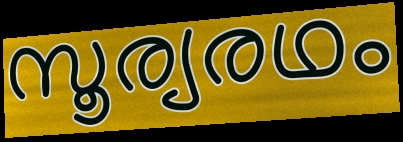
സൂര്യരഥം